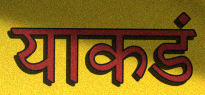
याकडं